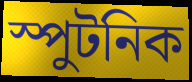
স্পুটনিক